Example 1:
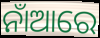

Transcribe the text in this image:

ନାଁଆରେ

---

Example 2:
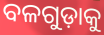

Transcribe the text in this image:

ବଳଗୁଡ଼ାକୁ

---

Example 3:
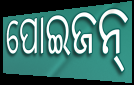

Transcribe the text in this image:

ପୋଇଜନ୍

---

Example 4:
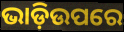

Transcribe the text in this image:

ଭାଡ଼ିଉପରେ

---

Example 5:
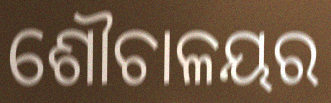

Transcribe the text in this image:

ଶୌଚାଳୟର